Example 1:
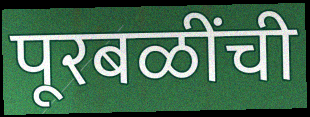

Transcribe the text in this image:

पूरबळींची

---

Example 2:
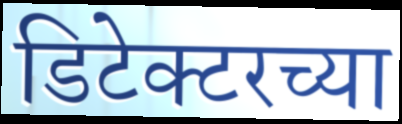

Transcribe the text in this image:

डिटेक्टरच्या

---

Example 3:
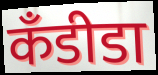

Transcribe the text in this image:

कॅंडीडा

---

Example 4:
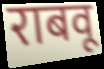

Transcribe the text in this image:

राबवू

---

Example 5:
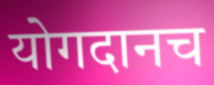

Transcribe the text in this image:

योगदानच